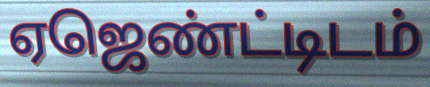
ஏஜெண்ட்டிடம்